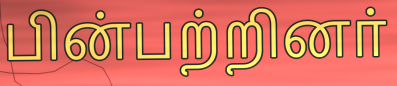
பின்பற்றினர்